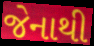
જેનાથી